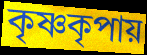
কৃষ্ণকৃপায়